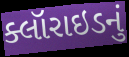
ક્લૉરાઇડનું